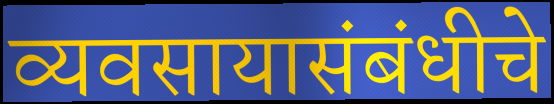
व्यवसायासंबंधीचे